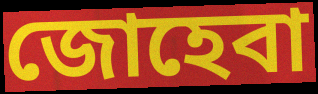
জোহেবা